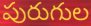
పురుగుల